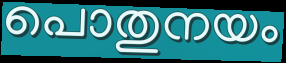
പൊതുനയം